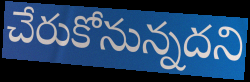
చేరుకోనున్నదని